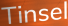
Tinsel